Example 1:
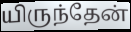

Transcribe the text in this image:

யிருந்தேன்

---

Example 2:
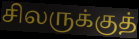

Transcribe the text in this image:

சிலருக்குத்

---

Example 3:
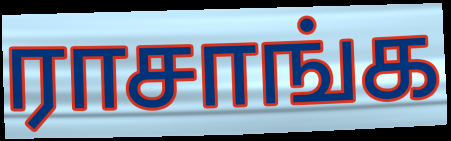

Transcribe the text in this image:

ராசாங்க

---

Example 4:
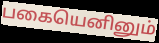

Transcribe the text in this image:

பகையெனினும்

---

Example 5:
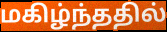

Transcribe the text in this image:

மகிழ்ந்ததில்